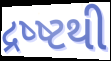
દ્રષ્ષ્ટથી